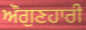
ਔਗੁਣਹਾਰੀ